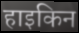
हाइकिन